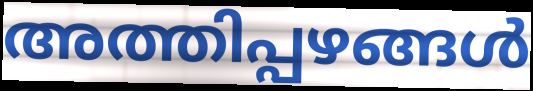
അത്തിപ്പഴങ്ങൾ